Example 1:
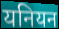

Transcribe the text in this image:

यनियन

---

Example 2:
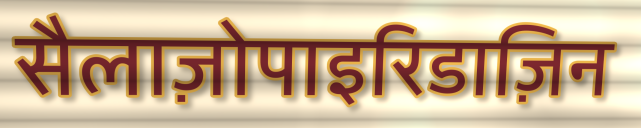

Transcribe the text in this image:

सैलाज़ोपाइरिडाज़िन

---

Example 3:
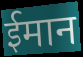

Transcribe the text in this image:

ईमान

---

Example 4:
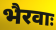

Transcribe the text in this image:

भैरवाः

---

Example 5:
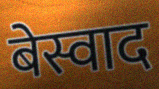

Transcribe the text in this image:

बेस्वाद